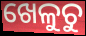
ଖେଳୁଚୁ